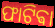
ଫାଟିଵା